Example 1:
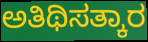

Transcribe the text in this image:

ಅತಿಥಿಸತ್ಕಾರ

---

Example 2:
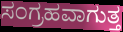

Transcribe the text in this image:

ಸಂಗ್ರಹವಾಗುತ್ತ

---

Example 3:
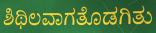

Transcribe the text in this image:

ಶಿಥಿಲವಾಗತೊಡಗಿತು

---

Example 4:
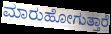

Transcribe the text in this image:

ಮಾರುಹೋಗುತ್ತಾರೆ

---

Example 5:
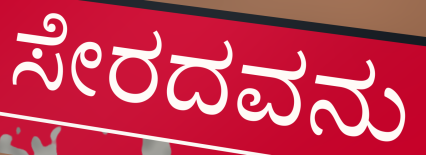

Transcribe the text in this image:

ಸೇರದವನು